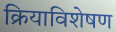
क्रियाविशेषण